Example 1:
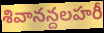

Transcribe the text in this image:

శివానన్దలహరీ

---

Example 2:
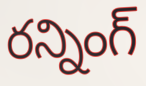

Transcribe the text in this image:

రన్నింగ్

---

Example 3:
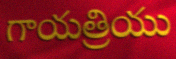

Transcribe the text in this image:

గాయత్రియు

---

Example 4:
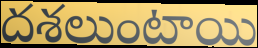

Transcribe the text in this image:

దశలుంటాయి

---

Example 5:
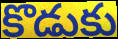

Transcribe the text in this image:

కొడుకు